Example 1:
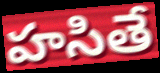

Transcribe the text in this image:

హసితే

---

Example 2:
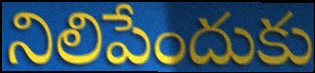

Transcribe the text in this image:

నిలిపేందుకు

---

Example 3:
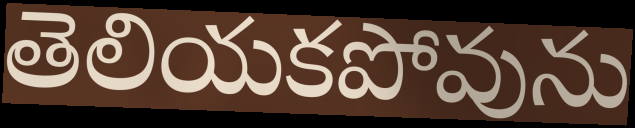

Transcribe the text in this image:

తెలియకపోవును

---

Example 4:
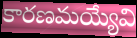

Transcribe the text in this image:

కారణమయ్యేవి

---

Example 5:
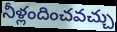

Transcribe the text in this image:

నీళ్లందించవచ్చు